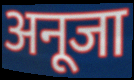
अनूजा